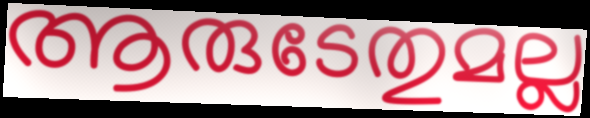
ആരുടേതുമല്ല